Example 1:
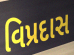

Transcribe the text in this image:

વિપ્રદાસ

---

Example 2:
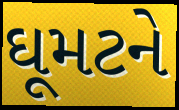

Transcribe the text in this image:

ઘૂમટને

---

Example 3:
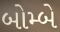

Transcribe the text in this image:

બોમ્બે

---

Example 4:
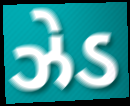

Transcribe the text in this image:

ઝેડ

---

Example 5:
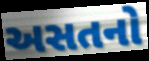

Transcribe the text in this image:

અસતનો